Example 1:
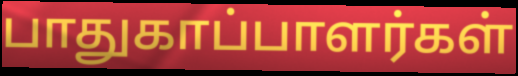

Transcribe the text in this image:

பாதுகாப்பாளர்கள்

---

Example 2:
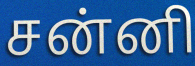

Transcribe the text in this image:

சன்னி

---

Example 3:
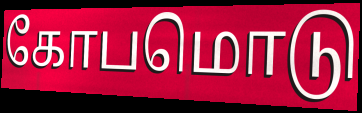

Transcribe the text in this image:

கோபமொடு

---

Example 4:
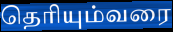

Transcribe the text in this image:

தெரியும்வரை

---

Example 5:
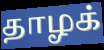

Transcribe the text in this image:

தாழக்